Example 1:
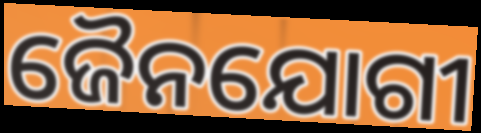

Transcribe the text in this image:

ଜୈନଯୋଗୀ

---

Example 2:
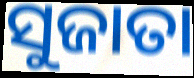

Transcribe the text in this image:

ସୁଜାତା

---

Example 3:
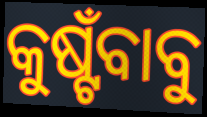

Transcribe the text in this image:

କୁଷ୍ଟଁବାବୁ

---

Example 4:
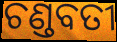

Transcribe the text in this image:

ଚଣ୍ଡବତୀ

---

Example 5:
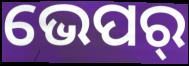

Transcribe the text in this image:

ଭେପର୍